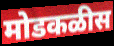
मोडकळीस